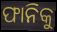
ଫାନିକୁ